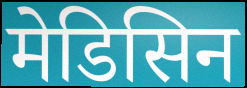
मेडिसिन